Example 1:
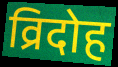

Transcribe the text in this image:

व्रिदोह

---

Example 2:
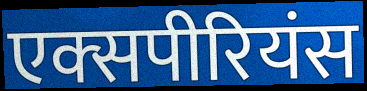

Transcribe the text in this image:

एक्‍सपीरियंस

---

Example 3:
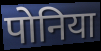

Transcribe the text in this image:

पोनिया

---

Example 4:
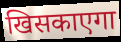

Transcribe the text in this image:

खिसकाएगा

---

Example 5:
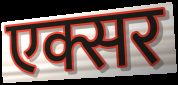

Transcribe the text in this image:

एक्सर